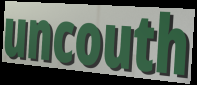
uncouth